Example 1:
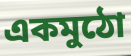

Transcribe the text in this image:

একমুঠো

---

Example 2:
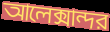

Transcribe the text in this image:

আলেক্সান্দর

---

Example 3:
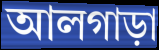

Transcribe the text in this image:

আলগাড়া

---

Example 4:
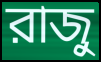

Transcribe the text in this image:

রাজু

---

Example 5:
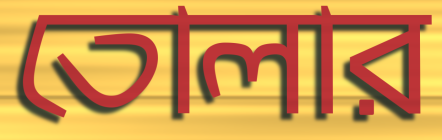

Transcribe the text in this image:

তোলার